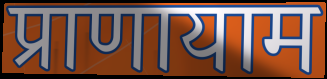
प्राणायाम